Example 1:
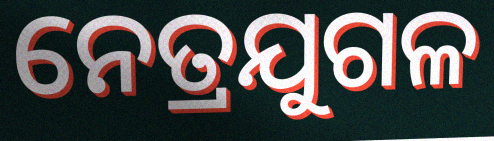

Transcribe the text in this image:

ନେତ୍ରଯୁଗଳ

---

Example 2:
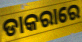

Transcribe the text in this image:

ଡାକରାରେ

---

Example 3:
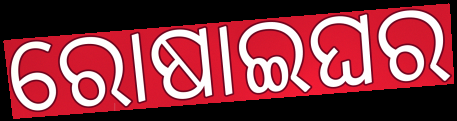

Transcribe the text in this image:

ରୋଷାଇଘର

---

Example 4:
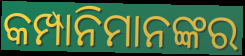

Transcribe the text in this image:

କମ୍ପାନିମାନଙ୍କର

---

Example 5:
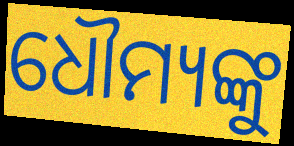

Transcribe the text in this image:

ଧୌମ୍ୟଙ୍କୁ